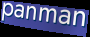
panman